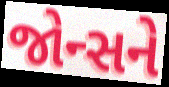
જોન્સને